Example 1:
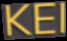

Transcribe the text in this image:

KEI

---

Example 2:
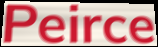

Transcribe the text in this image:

Peirce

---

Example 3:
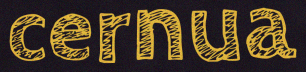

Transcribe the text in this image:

cernua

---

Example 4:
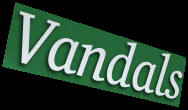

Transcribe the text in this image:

Vandals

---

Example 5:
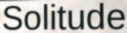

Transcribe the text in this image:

Solitude